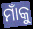
ମାଁକୁ